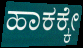
ಹಾಕಕ್ಕೇ